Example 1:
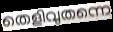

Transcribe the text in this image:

തെളിവുതന്നെ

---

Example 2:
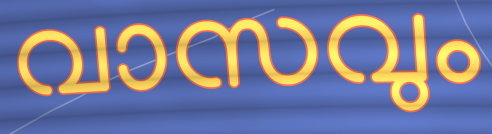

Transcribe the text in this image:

വാസവും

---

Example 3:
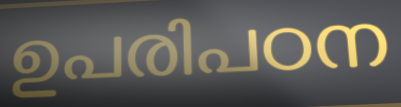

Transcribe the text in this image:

ഉപരിപഠന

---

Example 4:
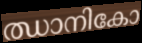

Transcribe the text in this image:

ഝാനികോ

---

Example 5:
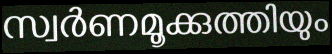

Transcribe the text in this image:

സ്വർണമൂക്കുത്തിയും